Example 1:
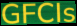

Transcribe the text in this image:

GFCIs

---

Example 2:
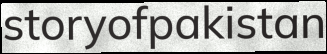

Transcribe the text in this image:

storyofpakistan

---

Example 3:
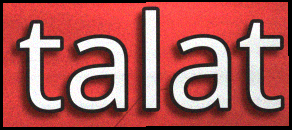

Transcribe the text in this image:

talat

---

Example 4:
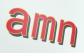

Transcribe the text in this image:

amn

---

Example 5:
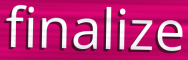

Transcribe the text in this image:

finalize